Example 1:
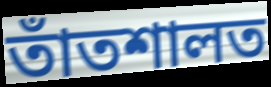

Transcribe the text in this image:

তাঁতশালত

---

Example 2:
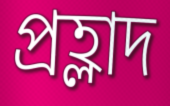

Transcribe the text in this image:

প্ৰহ্লাদ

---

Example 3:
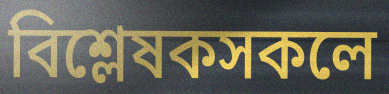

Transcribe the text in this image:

বিশ্লেষকসকলে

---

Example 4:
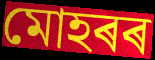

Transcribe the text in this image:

মোহৰৰ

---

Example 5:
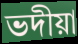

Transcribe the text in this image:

ভদীয়া